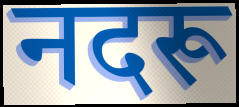
नदरू